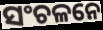
ସଂଚଳନେ